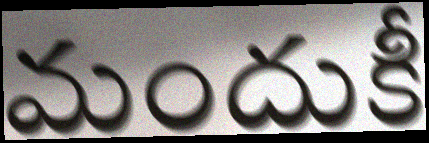
మందుకీ